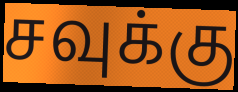
சவுக்கு